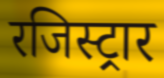
रजिस्ट्रार